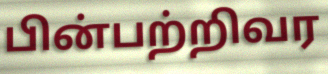
பின்பற்றிவர